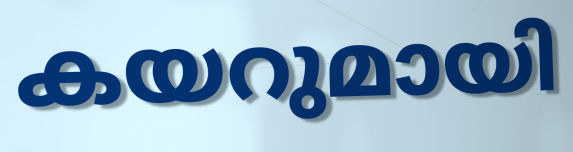
കയറുമായി